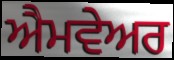
ਐਮਵੇਅਰ